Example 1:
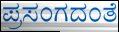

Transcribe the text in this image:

ಪ್ರಸಂಗದಂತೆ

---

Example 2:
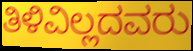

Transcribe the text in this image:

ತಿಳಿವಿಲ್ಲದವರು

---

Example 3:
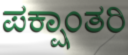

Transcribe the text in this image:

ಪಕ್ಷಾಂತರಿ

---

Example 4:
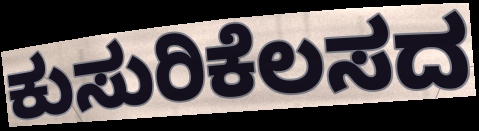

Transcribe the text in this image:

ಕುಸುರಿಕೆಲಸದ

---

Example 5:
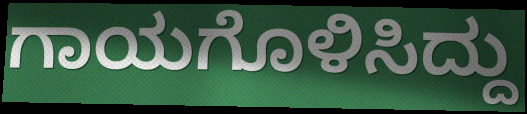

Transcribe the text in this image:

ಗಾಯಗೊಳಿಸಿದ್ದು